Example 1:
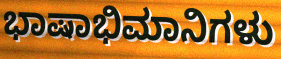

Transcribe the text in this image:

ಭಾಷಾಭಿಮಾನಿಗಳು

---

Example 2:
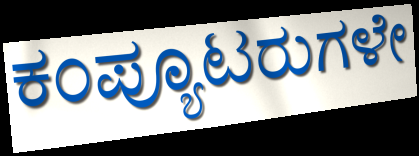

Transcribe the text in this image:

ಕಂಪ್ಯೂಟರುಗಳೇ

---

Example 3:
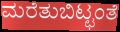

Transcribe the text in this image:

ಮರೆತುಬಿಟ್ಟಂತೆ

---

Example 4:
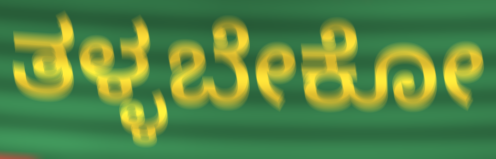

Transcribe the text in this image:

ತಳ್ಳಬೇಕೋ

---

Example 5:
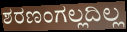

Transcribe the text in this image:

ಶರಣಂಗಲ್ಲದಿಲ್ಲ